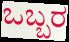
ಒಬ್ಬರ